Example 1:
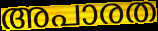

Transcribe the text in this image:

അപാരത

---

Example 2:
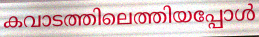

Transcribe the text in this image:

കവാടത്തിലെത്തിയപ്പോൾ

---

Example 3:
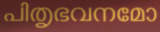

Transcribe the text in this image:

പിതൃഭവനമോ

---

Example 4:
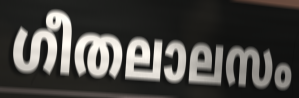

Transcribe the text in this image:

ഗീതലാലസം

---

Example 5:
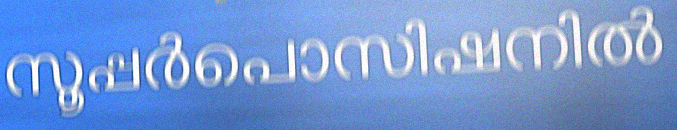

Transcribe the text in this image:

സൂപ്പർപൊസിഷനിൽ